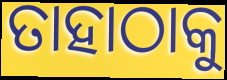
ତାହାଠାକୁ